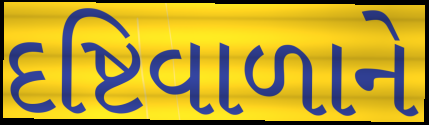
દષ્ટિવાળાને